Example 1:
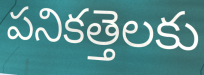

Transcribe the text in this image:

పనికత్తెలకు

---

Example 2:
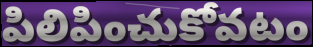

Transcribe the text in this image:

పిలిపించుకోవటం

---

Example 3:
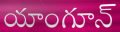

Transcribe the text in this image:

యాంగూన్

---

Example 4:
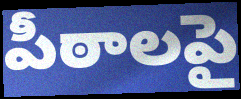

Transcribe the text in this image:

పీఠాలపై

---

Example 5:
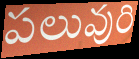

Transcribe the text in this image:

పలువురి